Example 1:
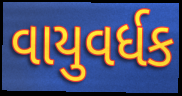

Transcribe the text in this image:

વાયુવર્ધક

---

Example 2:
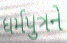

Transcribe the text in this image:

ધર્મપુત્રને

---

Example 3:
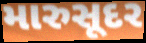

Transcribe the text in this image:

મારુસૂદર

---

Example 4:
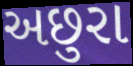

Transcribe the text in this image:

અછુરા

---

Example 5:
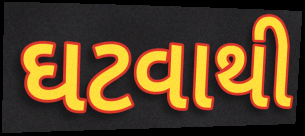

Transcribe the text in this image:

ઘટવાથી